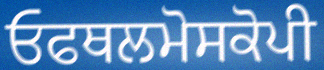
ਓਫਥਲਮੋਸਕੋਪੀ